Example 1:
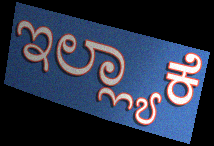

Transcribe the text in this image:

ಇಲ್ಲ್ಯಾಕೆ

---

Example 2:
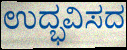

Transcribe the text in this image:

ಉದ್ಭವಿಸದ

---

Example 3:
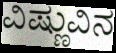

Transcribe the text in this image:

ವಿಷ್ಣುವಿನ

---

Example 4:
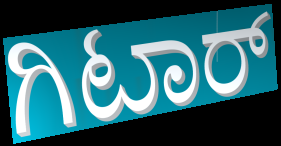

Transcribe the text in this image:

ಗಿಟಾರ್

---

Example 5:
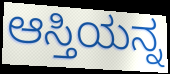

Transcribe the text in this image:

ಆಸ್ತಿಯನ್ನ